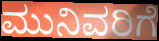
ಮುನಿವರಿಗೆ